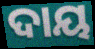
ଦାୟ